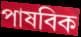
পাষবিক